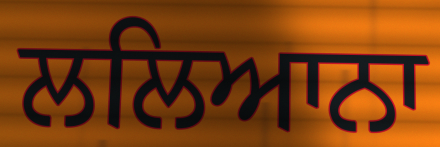
ਲਲਿਆਨਾ